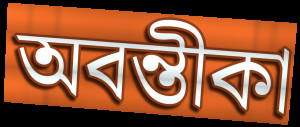
অবন্তীকা